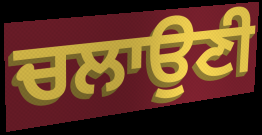
ਚਲਾਉਣੀ